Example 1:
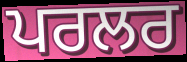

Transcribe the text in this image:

ਪਰਲਰ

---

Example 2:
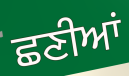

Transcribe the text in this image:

ਛਣੀਆਂ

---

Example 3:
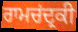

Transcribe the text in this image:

ਰਾਮਚਂਦ੍ਰਕੀ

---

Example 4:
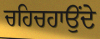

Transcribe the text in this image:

ਚਹਿਚਹਾਉਂਦੇ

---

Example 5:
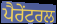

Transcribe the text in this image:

ਪੈਰੇਂਟਰਲ